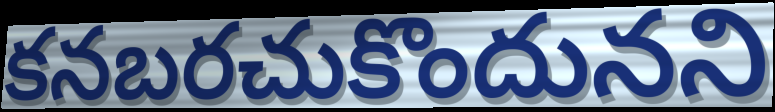
కనబరచుకొందునని